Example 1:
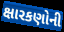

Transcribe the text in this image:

ક્ષારકણોની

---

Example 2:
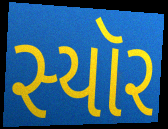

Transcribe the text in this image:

સ્યૉર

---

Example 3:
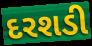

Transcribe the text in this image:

દરશડી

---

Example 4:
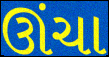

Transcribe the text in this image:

ઊંચા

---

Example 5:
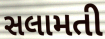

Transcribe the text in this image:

સલામતી